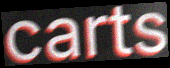
carts